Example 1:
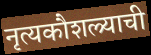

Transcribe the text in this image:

नृत्यकौशल्याची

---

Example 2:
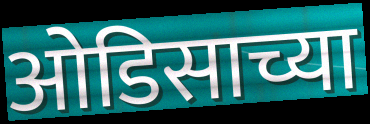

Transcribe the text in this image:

ओडिसाच्या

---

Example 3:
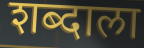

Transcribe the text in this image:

शब्दाला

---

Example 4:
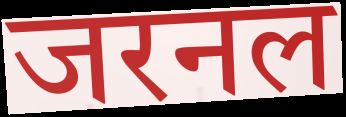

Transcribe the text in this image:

जरनल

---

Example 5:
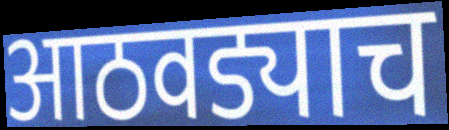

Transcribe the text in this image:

आठवड्याच